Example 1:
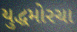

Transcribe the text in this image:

યુદ્ધમોરચા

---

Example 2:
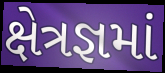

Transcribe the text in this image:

ક્ષેત્રજ્ઞમાં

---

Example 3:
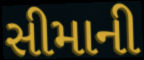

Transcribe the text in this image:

સીમાની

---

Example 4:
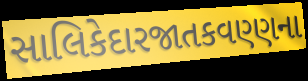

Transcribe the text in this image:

સાલિકેદારજાતકવણ્ણના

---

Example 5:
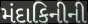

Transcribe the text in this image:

મંદાકિનીની